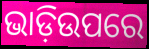
ଭାଡ଼ିଉପରେ